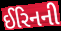
ઈરિનની